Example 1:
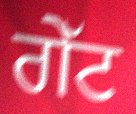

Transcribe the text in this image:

ਗੇੱਟ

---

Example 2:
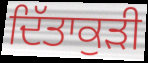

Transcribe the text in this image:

ਦਿੱਤਾਕੁੜੀ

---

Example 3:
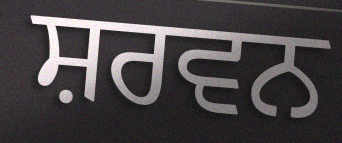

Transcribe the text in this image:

ਸ਼ਰਵਨ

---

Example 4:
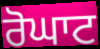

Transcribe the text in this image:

ਰੋਘਾਟ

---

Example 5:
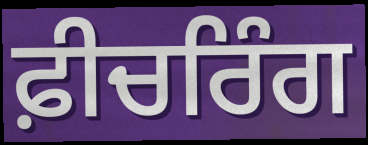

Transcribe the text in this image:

ਫ਼ੀਚਰਿੰਗ